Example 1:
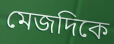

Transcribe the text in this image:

মেজদিকে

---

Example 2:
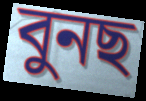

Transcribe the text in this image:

বুনছ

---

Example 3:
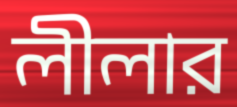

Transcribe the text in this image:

লীলার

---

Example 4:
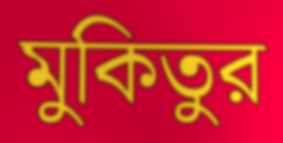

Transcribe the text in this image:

মুকিতুর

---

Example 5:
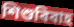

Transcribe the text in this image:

শিশুবিবাহ